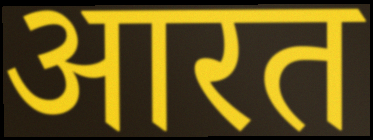
आरत